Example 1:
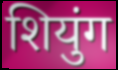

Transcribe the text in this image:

शियुंग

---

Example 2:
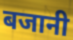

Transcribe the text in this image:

बजानी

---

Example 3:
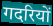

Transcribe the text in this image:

गदरियों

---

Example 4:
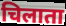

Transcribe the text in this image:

चिलाता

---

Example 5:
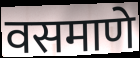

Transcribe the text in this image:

वसमाणे